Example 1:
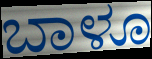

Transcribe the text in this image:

ಬಾಳೂ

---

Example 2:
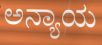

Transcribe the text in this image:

ಅನ್ಯಾಯ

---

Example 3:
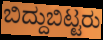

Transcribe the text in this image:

ಬಿದ್ದುಬಿಟ್ಟರು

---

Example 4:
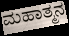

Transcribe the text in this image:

ಮಹಾತ್ಮನ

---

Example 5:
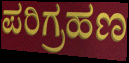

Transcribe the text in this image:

ಪರಿಗ್ರಹಣ